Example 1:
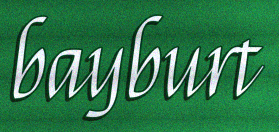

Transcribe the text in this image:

bayburt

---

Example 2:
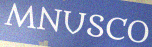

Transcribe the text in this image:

MNUSCO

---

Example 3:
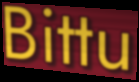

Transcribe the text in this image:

Bittu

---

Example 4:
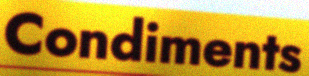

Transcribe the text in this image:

Condiments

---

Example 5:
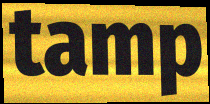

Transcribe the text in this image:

tamp